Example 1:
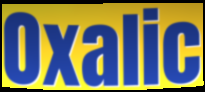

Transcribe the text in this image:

Oxalic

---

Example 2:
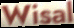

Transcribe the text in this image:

Wisal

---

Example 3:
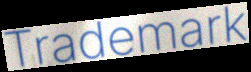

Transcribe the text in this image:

Trademark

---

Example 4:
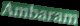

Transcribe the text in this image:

Ambaram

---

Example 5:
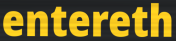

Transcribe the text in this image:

entereth